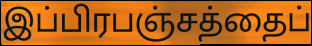
இப்பிரபஞ்சத்தைப்